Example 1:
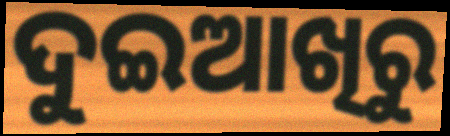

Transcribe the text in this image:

ଦୁଇଆଖିରୁ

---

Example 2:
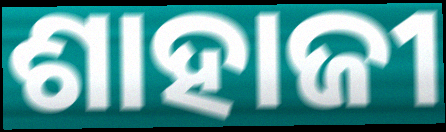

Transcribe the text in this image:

ଶାହାଜୀ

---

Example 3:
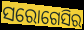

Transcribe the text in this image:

ସରୋଗେସିର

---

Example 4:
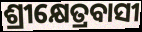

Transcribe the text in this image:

ଶ୍ରୀକ୍ଷେତ୍ରବାସୀ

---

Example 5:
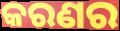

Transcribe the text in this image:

କରଣର